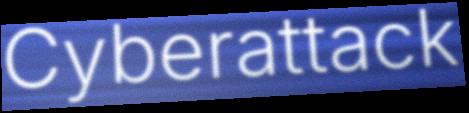
Cyberattack